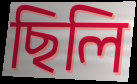
ছিলি